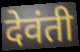
देवंती